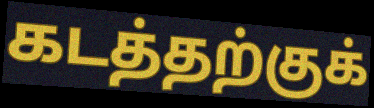
கடத்தற்குக்